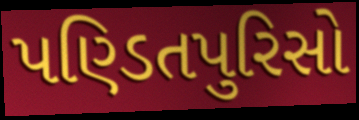
પણ્ડિતપુરિસો